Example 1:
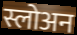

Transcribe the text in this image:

स्लोअन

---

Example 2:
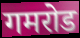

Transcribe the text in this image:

गमरोड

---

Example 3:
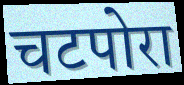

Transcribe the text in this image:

चटपोरा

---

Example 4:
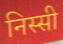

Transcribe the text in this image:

निस्सी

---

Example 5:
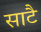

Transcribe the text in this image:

साटै